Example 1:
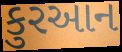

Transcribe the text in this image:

કુરઆન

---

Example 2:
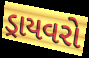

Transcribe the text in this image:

ડ્રાયવરો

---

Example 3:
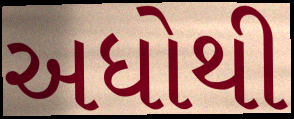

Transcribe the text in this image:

અધોથી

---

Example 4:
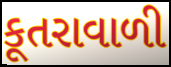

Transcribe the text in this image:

કૂતરાવાળી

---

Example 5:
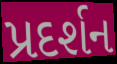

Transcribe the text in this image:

પ્રદર્શન